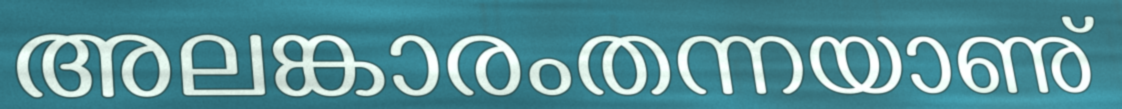
അലങ്കാരംതന്നയാണു്